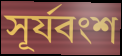
সূর্যবংশ